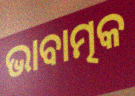
ଭାବାତ୍ମକ